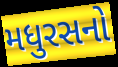
મધુરસનો